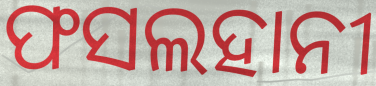
ଫସଲହାନୀ